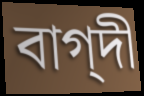
বাগ্‌দী